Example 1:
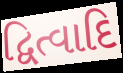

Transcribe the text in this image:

દ્વિત્વાદિ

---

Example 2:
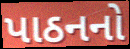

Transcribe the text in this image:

પાઠનનો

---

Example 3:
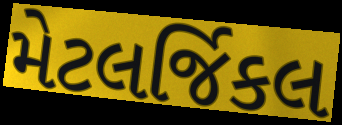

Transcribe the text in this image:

મેટલર્જિકલ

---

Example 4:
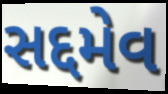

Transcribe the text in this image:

સદ્દમેવ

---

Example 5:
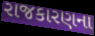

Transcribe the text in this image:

રાજકારણના